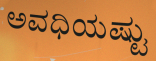
ಅವಧಿಯಷ್ಟು